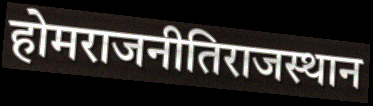
होमराजनीतिराजस्थान